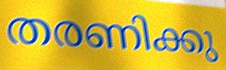
തരണിക്കു